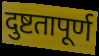
दुष्टतापूर्ण